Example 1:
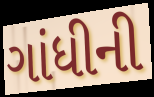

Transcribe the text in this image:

ગાંધીની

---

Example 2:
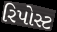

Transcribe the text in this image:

રિપોસ્ટ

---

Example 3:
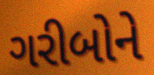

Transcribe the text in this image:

ગરીબોને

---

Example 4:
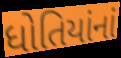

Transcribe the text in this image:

ધોતિયાંનાં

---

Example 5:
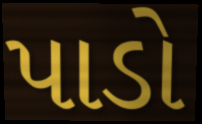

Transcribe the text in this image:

પાડો